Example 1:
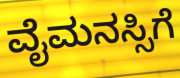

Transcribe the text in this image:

ವೈಮನಸ್ಸಿಗೆ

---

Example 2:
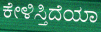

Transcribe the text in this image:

ಕೇಳಿಸ್ತಿದೆಯಾ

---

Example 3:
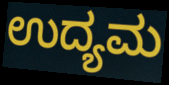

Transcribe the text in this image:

ಉದ್ಯಮ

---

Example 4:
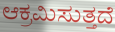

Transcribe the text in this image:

ಆಕ್ರಮಿಸುತ್ತದೆ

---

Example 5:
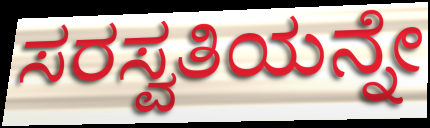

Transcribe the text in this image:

ಸರಸ್ವತಿಯನ್ನೇ